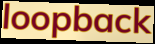
loopback